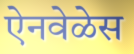
ऐनवेळेस